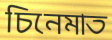
চিনেমাত